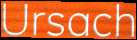
Ursach